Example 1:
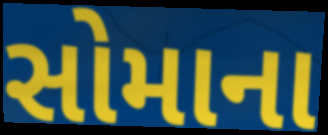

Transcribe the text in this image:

સોમાના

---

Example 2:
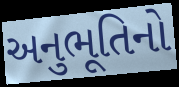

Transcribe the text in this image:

અનુભૂતિનો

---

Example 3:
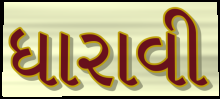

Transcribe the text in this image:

ધારાવી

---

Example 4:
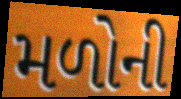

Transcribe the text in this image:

મળોની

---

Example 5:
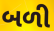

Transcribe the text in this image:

બળી